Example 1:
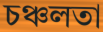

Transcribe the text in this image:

চঞ্চলতা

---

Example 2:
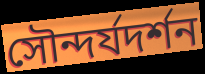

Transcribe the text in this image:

সৌন্দর্যদর্শন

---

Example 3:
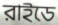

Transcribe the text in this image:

রাইডে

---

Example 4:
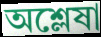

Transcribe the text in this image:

অশ্লেষা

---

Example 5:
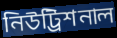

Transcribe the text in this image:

নিউট্রিশনাল